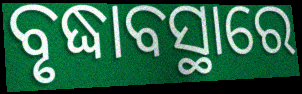
ବୃଦ୍ଧାବସ୍ଥାରେ